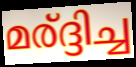
മര്ദ്ദിച്ച